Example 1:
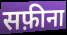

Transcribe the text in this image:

सफ़ीना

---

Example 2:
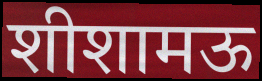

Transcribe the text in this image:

शीशामऊ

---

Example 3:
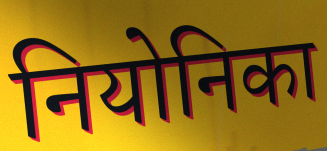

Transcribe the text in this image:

नियोनिका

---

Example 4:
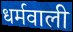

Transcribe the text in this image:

धर्मवाली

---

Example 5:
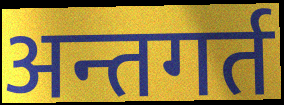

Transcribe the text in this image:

अन्तगर्त